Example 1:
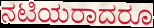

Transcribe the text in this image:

ನಟಿಯರಾದರೂ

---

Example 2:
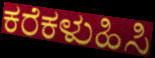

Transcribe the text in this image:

ಕರೆಕಳುಹಿಸಿ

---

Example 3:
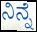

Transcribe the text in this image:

ನಿನ್ನೆ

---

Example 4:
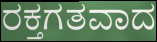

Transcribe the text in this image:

ರಕ್ತಗತವಾದ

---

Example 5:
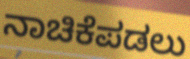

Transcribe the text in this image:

ನಾಚಿಕೆಪಡಲು